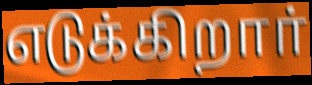
எடுக்கிறார்